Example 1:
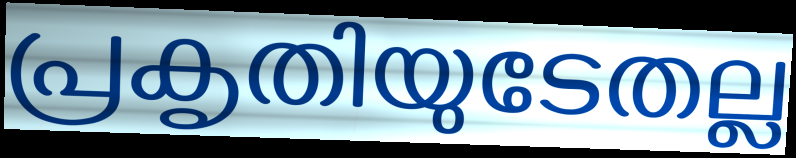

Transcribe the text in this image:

പ്രകൃതിയുടേതല്ല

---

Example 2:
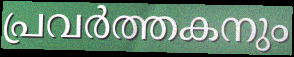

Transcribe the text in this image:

പ്രവർത്തകനും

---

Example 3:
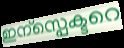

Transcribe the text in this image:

ഇന്സ്പെക്ടറെ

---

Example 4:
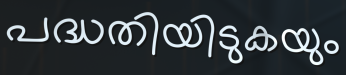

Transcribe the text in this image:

പദ്ധതിയിടുകയും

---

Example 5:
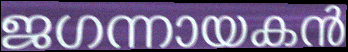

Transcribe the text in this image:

ജഗന്നായകൻ